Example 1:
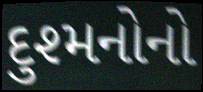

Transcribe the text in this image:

દુશ્મનોનો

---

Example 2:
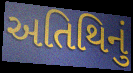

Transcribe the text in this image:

અતિથિનું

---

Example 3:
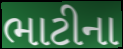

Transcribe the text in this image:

ભાટીના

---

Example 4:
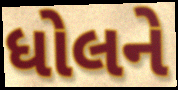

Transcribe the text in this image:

ધોલને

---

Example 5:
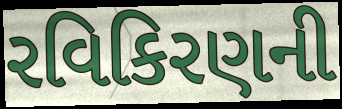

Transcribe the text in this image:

રવિકિરણની